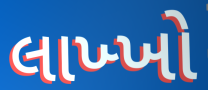
લાખ્ખો